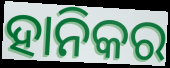
ହାନିକର